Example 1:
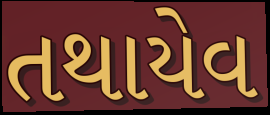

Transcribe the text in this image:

તથાયેવ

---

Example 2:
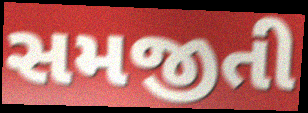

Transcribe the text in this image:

સમજીતી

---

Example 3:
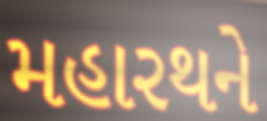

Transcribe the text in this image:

મહારથને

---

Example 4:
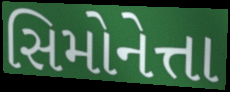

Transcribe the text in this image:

સિમોનેત્તા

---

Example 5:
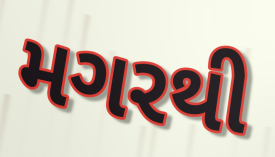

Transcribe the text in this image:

મગરથી